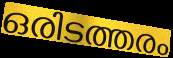
ഒരിടത്തരം